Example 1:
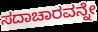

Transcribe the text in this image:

ಸದಾಚಾರವನ್ನೇ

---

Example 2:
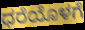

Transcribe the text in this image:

ಧರೆಯೊಳಗೆ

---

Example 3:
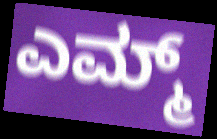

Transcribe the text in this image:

ಎಮ್ಮ್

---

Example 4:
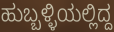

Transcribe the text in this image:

ಹುಬ್ಬಳ್ಳಿಯಲ್ಲಿದ್ದ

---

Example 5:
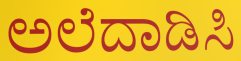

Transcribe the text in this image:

ಅಲೆದಾಡಿಸಿ